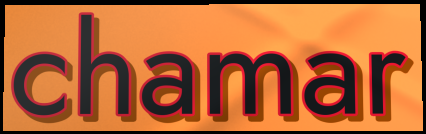
chamar